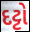
દટ્ટો